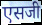
एसजी